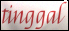
tinggal